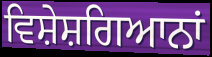
ਵਿਸ਼ੇਸ਼ਗਿਆਨਾਂ